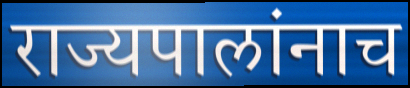
राज्यपालांनाच